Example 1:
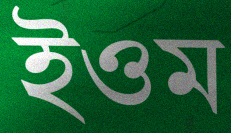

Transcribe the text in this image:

ইওম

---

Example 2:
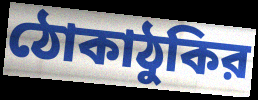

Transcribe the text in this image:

ঠোকাঠুকির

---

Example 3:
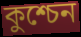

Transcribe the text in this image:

কুশ্চেন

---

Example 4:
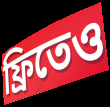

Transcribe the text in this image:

ফ্রিতেও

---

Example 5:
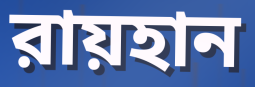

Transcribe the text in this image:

রায়হান